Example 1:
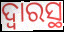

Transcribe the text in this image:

ଦ୍ବାରସ୍ଥ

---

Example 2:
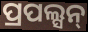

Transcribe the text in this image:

ପ୍ରପଲ୍ସନ୍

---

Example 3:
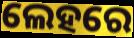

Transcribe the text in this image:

ଲେହରେ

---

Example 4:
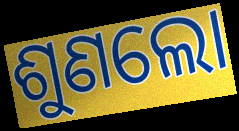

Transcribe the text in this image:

ଶୁଣଲୋ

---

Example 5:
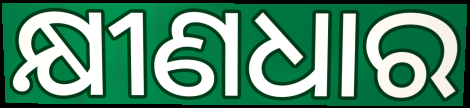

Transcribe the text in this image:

କ୍ଷୀଣଧାର